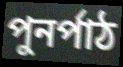
পুনর্পাঠ